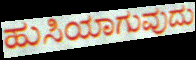
ಹುಸಿಯಾಗುವುದು